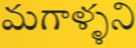
మగాళ్ళని